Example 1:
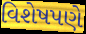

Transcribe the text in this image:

વિશેષપણે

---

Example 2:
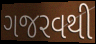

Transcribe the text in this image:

ગજરવથી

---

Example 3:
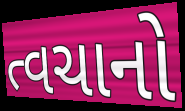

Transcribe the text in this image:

ત્વચાનો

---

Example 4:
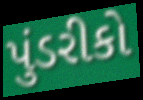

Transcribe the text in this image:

પુંડરીકો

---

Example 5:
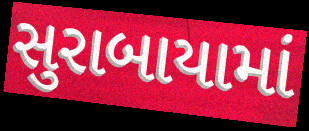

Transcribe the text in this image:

સુરાબાયામાં